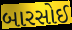
બારસોઈ